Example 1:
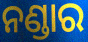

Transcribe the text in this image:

ନଣ୍ଡାର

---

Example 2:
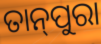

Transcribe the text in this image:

ତାନ୍‌ପୁରା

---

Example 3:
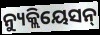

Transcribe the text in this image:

ନ୍ୟୁକ୍ଲିୟେସନ୍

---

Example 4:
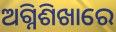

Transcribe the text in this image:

ଅଗ୍ନିଶିଖାରେ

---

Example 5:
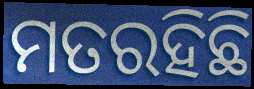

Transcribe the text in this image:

ମତରହିଛି